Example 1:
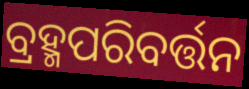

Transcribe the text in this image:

ବ୍ରହ୍ମପରିବର୍ତ୍ତନ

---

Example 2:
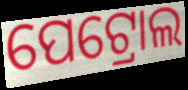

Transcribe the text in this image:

ପେଟ୍ରୋଲ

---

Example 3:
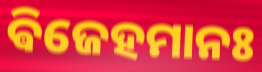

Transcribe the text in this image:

ଵିଜେହମାନଃ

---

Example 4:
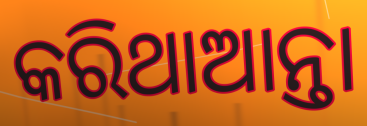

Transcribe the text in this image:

କରିଥାଆନ୍ତା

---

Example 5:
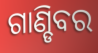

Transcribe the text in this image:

ଗାଣ୍ଡିବର